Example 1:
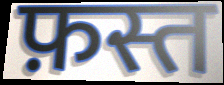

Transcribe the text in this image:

फ़स्त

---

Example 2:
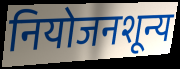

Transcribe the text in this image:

नियोजनशून्य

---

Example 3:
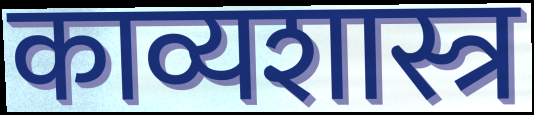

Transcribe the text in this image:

काव्यशास्त्र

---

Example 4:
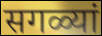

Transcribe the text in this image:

सगळ्यां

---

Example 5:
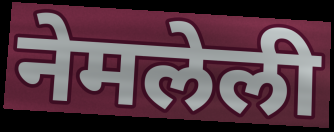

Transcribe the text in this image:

नेमलेली